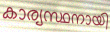
കാര്യസ്ഥനായി